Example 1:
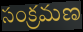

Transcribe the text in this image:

సంక్రమణ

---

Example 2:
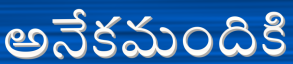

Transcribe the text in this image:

అనేకమందికి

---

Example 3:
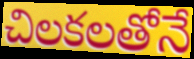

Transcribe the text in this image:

చిలకలతోనే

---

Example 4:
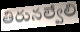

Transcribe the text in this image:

తిరునల్వేలి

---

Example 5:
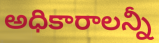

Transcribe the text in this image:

అధికారాలన్నీ